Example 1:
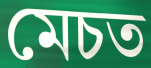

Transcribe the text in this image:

মেচত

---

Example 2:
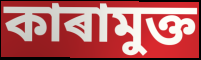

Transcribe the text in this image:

কাৰামুক্ত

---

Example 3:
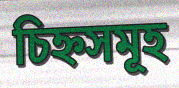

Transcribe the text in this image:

চিহ্নসমূহ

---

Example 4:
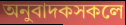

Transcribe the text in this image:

অনুবাদকসকলে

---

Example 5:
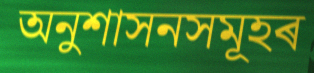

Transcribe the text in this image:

অনুশাসনসমূহৰ